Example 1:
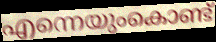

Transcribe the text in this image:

എന്നെയുംകൊണ്ട്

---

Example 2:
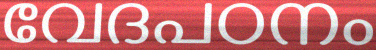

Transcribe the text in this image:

വേദപഠനം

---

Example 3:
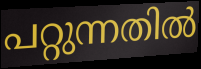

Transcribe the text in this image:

പറ്റുന്നതിൽ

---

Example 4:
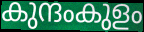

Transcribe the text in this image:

കുന്ദംകുളം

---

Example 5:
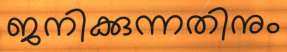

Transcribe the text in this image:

ജനിക്കുന്നതിനും